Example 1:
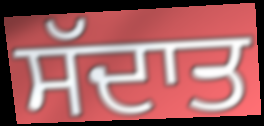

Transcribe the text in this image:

ਸੱਦਾਤ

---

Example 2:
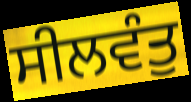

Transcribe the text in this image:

ਸੀਲਵੰਤੁ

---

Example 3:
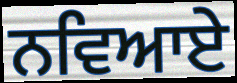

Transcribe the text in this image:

ਨਵਿਆਏ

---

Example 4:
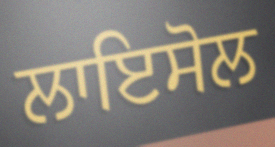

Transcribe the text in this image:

ਲਾਇਸੋਲ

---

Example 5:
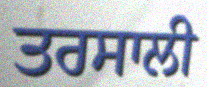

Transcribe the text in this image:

ਤਰਸਾਲੀ